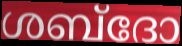
ശബ്ദോ